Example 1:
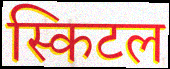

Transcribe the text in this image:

स्किटल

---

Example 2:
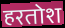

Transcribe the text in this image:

हरतोश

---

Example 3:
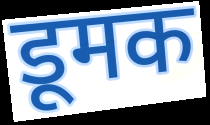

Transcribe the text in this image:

डूमक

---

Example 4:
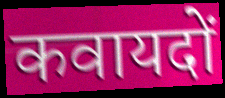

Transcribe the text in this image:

कवायदों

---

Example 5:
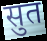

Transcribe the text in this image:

सुत